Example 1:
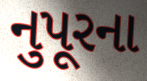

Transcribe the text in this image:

નુપૂરના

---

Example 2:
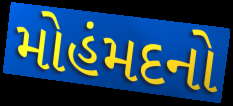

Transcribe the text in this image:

મોહંમદનો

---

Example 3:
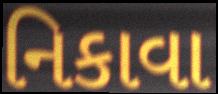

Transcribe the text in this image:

નિકાવા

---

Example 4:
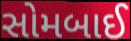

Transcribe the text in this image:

સોમબાઈ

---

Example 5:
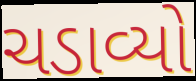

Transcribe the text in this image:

ચડાવ્યો